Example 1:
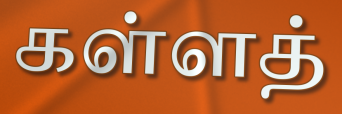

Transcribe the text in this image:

கள்ளத்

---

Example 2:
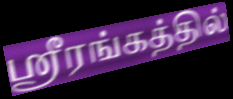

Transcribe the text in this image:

ஸ்ரீரங்கத்தில்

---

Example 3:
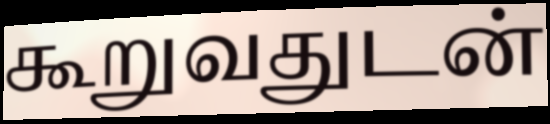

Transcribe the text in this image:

கூறுவதுடன்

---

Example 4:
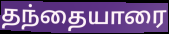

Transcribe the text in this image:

தந்தையாரை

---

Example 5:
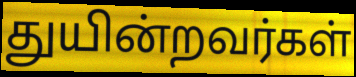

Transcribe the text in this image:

துயின்றவர்கள்